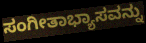
ಸಂಗೀತಾಭ್ಯಾಸವನ್ನು